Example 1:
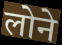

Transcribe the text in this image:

लोने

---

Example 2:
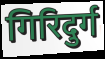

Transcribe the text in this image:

गिरिदुर्ग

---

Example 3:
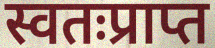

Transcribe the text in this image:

स्वतःप्राप्त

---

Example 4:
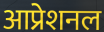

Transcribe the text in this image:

आप्रेशनल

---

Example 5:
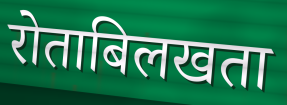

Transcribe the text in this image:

रोताबिलखता